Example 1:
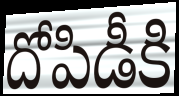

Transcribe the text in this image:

దోపిడీకి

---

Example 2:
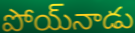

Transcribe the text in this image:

పోయ్‌నాడు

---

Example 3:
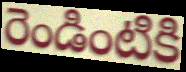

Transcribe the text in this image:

రెండింటికి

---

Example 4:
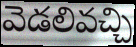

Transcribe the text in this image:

వెడలివచ్చి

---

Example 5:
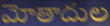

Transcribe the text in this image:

మోతాదుల